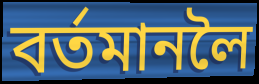
বৰ্তমানলৈ